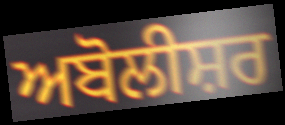
ਅਬੋਲੀਸ਼ਰ